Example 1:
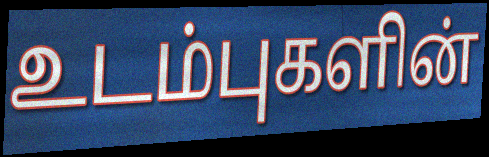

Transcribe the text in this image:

உடம்புகளின்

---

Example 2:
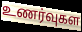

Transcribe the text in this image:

உணர்வுகள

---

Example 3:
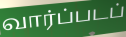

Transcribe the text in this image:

வார்ப்படப்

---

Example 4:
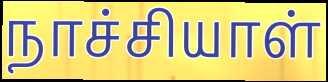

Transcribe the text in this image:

நாச்சியாள்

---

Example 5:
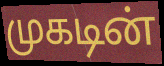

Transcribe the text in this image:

முகடின்